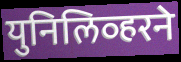
युनिलिव्हरने